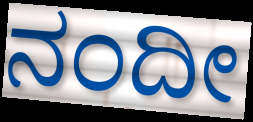
ನಂದೀ